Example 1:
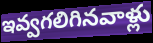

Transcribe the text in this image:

ఇవ్వగలిగినవాళ్లు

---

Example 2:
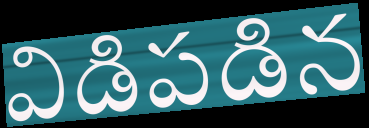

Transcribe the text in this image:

విడిపడిన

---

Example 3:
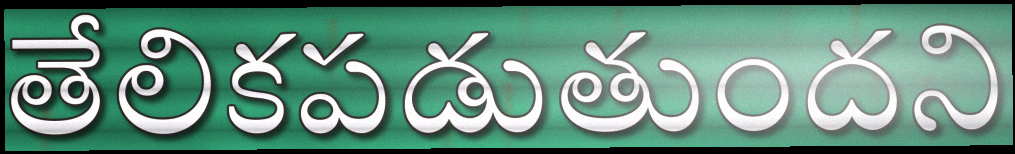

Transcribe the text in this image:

తేలికపడుతుందని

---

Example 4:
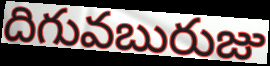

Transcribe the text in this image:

దిగువబురుజు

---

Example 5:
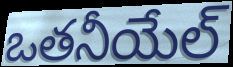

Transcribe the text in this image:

ఒతనీయేల్